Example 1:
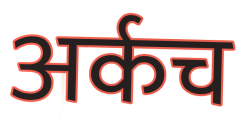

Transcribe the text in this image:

अर्कच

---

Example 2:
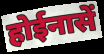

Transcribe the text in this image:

होईनासें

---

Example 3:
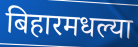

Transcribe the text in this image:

बिहारमधल्या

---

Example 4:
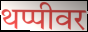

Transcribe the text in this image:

थप्पीवर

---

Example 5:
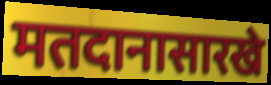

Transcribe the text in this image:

मतदानासारखे